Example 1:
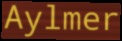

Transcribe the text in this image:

Aylmer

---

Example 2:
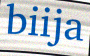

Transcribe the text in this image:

biija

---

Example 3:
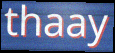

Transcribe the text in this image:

thaay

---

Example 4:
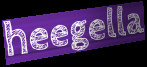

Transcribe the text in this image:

heegella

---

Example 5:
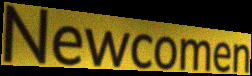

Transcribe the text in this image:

Newcomen